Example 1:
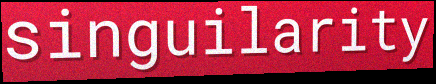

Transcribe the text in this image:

singuilarity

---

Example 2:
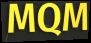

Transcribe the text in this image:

MQM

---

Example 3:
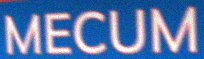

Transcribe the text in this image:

MECUM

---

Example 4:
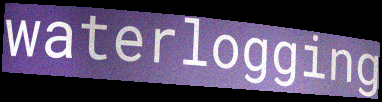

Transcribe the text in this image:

waterlogging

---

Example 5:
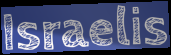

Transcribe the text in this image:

Israelis